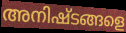
അനിഷ്ടങ്ങളെ